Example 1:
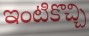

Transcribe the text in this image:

ఇంటికొచ్చి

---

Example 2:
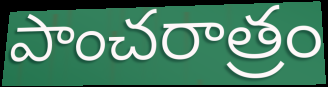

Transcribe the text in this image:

పాంచరాత్రం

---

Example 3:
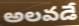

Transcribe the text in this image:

అలవడే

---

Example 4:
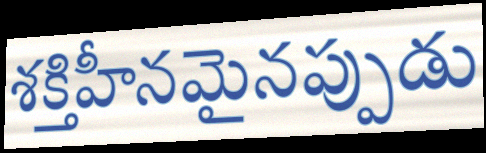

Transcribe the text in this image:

శక్తిహీనమైనప్పుడు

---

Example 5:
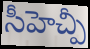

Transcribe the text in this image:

సీహెచ్పీ